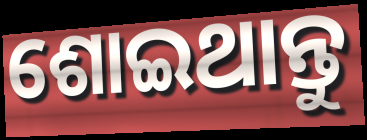
ଶୋଇଥାନ୍ତୁ